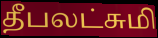
தீபலட்சுமி